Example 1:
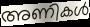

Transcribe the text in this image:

അണികൾ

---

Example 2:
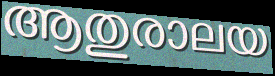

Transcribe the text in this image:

ആതുരാലയ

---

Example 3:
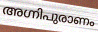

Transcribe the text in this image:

അഗ്നിപുരാണം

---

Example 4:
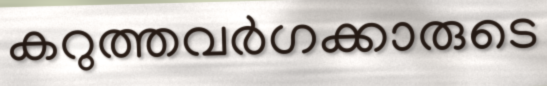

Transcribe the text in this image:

കറുത്തവർഗക്കാരുടെ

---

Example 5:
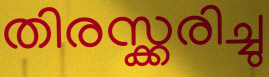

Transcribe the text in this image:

തിരസ്ക്കരിച്ചു